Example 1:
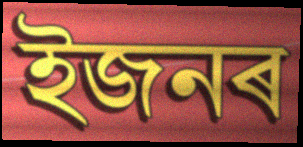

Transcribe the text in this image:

ইজনৰ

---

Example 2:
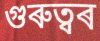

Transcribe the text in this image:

গুৰুত্বৰ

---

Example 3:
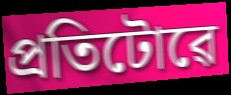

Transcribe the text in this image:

প্ৰতিটোৱে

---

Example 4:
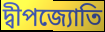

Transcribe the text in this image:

দ্বীপজ্যোতি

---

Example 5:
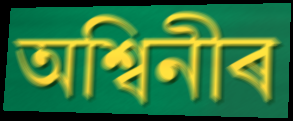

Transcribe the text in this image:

অশ্বিনীৰ